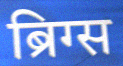
ब्रिग्स